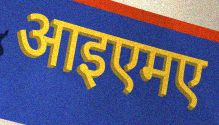
आइएमए